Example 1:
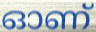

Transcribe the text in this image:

ഓണ്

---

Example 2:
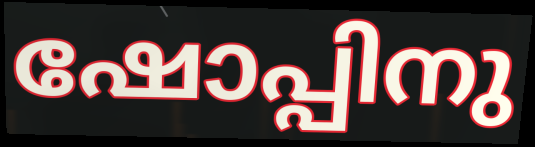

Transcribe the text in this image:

ഷോപ്പിനു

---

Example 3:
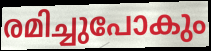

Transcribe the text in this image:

രമിച്ചുപോകും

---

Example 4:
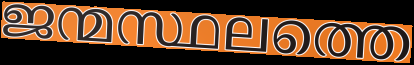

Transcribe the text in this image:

ജന്മസ്ഥലത്തെ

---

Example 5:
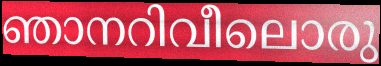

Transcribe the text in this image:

ഞാനറിവീലൊരു